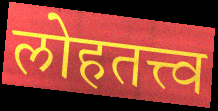
लोहतत्त्व